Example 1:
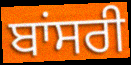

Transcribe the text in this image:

ਬਾਂਸਰੀ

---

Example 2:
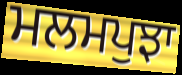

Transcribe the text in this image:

ਮਲਮਪੁਝਾ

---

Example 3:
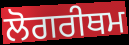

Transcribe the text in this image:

ਲੋਗਰੀਥਮ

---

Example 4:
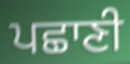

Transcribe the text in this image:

ਪਛਾਣੀ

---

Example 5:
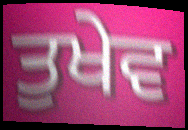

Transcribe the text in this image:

ਤੁਖੇਵ